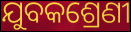
ଯୁବକଶ୍ରେଣୀ